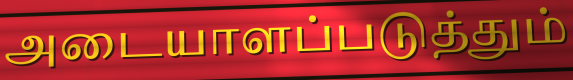
அடையாளப்படுத்தும்